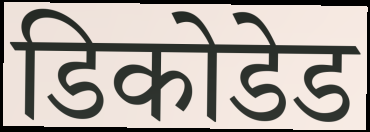
डिकोडेड